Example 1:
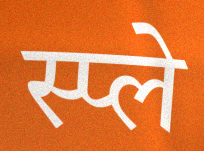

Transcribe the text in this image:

स्प्ले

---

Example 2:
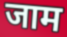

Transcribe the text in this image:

जाम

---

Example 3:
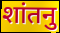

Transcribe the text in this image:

शांतनु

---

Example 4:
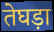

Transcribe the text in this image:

तेघड़ा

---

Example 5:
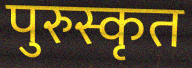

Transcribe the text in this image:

पुरुस्कृत